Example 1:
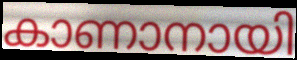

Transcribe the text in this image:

കാണാനായി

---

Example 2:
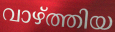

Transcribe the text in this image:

വാഴ്ത്തിയ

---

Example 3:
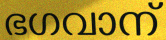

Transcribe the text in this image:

ഭഗവാന്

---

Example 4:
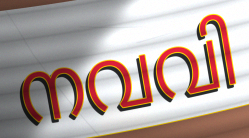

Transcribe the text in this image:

നവവി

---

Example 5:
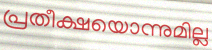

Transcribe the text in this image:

പ്രതീക്ഷയൊന്നുമില്ല